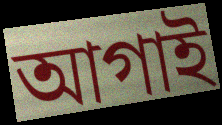
আগাই